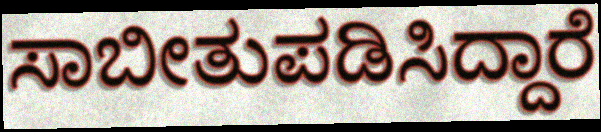
ಸಾಬೀತುಪಡಿಸಿದ್ದಾರೆ